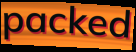
packed